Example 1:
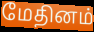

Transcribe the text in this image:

மேதினம்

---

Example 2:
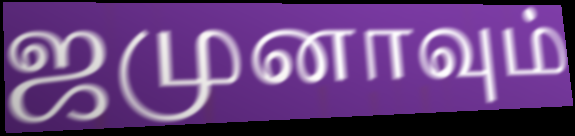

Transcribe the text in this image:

ஜமுனாவும்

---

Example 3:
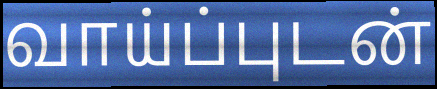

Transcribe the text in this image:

வாய்ப்புடன்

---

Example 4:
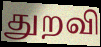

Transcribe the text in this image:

துறவி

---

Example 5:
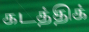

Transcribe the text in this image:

கடத்திக்